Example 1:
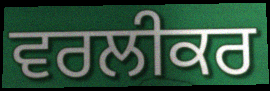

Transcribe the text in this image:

ਵਰਲੀਕਰ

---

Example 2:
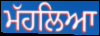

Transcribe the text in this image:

ਮੱਹਲਿਆ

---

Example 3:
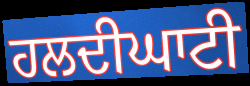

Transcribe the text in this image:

ਹਲਦੀਘਾਟੀ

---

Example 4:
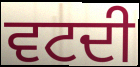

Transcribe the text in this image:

ਵਟਦੀ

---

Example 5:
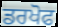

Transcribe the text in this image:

ਡਰਖੋਫ